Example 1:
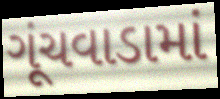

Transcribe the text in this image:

ગૂંચવાડામાં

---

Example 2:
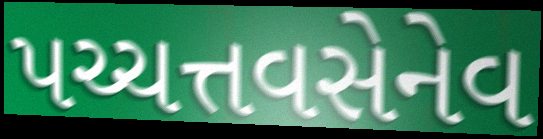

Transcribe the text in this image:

પચ્ચત્તવસેનેવ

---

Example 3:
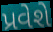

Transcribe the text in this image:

પ્રવેશે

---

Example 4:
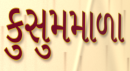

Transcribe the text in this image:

કુસુમમાળા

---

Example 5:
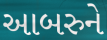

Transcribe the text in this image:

આબરુને